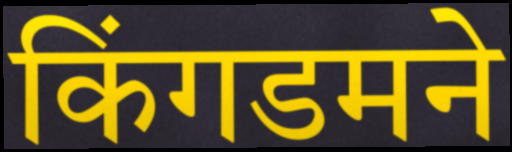
किंगडमने